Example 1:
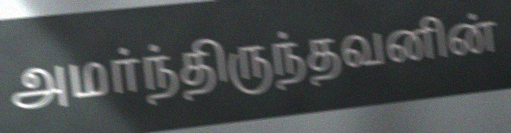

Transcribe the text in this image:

அமர்ந்திருந்தவனின்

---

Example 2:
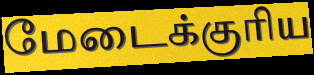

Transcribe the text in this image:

மேடைக்குரிய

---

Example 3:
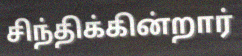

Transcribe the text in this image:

சிந்திக்கின்றார்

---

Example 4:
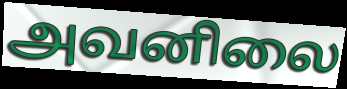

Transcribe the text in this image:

அவனிலை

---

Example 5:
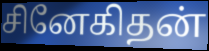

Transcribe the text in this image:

சினேகிதன்